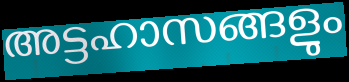
അട്ടഹാസങ്ങളും